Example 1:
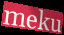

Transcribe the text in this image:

meku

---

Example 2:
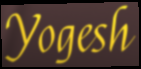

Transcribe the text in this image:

Yogesh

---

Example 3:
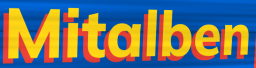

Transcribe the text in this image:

Mitalben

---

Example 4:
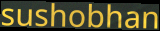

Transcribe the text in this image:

sushobhan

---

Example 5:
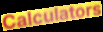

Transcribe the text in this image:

Calculators